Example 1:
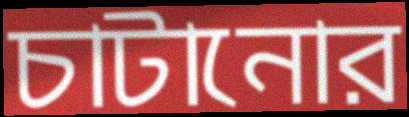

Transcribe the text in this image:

চাটানোর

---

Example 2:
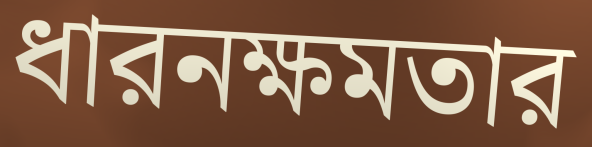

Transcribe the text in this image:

ধারনক্ষমতার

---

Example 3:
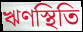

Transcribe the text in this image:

ঋণস্থিতি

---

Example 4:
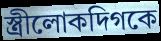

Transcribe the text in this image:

স্ত্রীলোকদিগকে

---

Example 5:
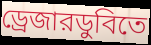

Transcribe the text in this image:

ড্রেজারডুবিতে